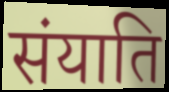
संयाति